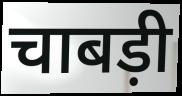
चाबड़ी